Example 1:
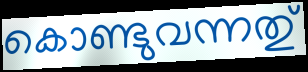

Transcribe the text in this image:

കൊണ്ടുവന്നതു്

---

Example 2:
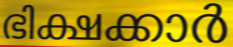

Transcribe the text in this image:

ഭിക്ഷക്കാർ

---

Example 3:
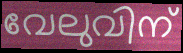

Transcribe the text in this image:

വേലുവിന്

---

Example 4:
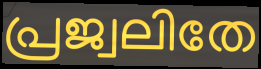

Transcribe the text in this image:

പ്രജ്വലിതേ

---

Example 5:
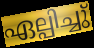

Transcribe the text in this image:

ഏല്പിച്ചു്